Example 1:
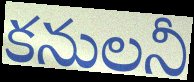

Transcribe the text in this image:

కనులనీ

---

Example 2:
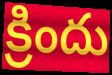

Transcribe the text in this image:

క్రిందు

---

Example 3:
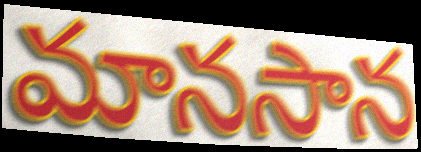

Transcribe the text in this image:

మానసాన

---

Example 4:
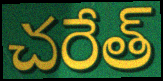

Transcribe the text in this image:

చరేత్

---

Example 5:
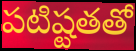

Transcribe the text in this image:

పటిష్టతతో